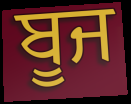
ਬੂਜ